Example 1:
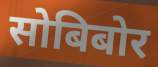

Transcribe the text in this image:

सोबिबोर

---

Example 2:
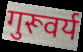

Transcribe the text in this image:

गुरूवर्य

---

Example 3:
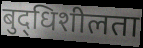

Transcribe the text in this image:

बुद्धिशीलता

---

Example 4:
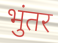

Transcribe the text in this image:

भुंतर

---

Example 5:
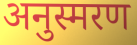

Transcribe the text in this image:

अनुस्मरण